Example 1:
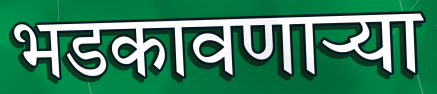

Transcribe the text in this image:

भडकावणाऱ्या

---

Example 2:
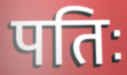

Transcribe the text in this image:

पतिः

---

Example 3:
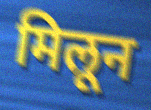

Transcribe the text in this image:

मिलून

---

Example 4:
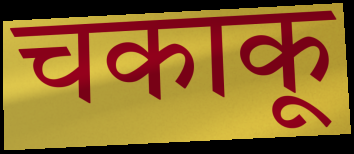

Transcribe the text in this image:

चकाकू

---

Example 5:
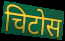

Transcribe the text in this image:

चिटोस